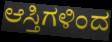
ಆಸ್ತಿಗಳಿಂದ